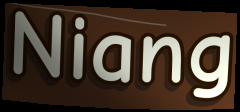
Niang